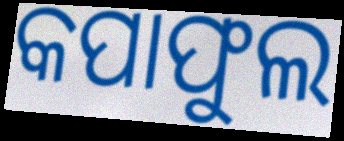
କପାଫୁଲ